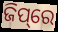
ଜିପ୍‌ରେ